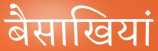
बैसाखियां